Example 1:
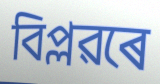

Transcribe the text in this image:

বিপ্লৱৰে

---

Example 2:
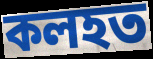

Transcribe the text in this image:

কলহত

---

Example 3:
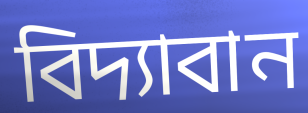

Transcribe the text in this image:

বিদ্যাবান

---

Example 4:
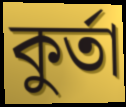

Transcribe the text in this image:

কুৰ্তা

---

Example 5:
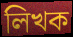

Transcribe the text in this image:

লিখক